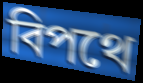
বিপথে